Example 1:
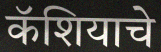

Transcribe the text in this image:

कॅशियाचे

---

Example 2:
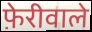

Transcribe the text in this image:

फ़ेरीवाले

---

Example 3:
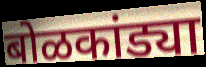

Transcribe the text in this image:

बोळकांड्या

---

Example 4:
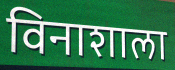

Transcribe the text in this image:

विनाशाला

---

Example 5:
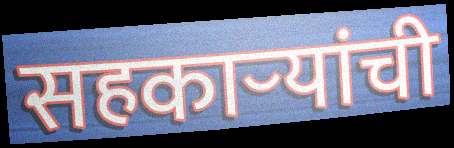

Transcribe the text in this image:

सहकाऱ्यांची